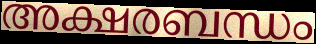
അക്ഷരബന്ധം